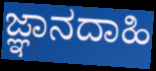
ಜ್ಞಾನದಾಹಿ